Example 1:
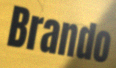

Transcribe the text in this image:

Brando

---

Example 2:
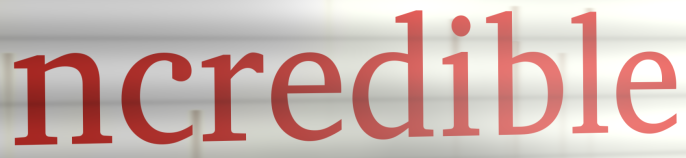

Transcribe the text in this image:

ncredible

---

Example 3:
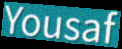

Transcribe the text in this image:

Yousaf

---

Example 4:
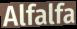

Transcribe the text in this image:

Alfalfa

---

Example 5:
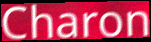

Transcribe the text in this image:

Charon